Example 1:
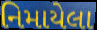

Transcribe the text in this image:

નિમાયેલા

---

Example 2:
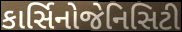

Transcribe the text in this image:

કાર્સિનોજેનિસિટી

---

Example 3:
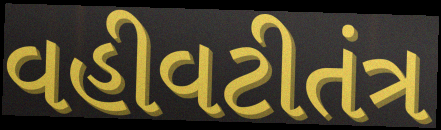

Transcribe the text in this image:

વહીવટીતંત્ર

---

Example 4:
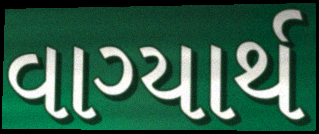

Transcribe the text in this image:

વાગ્યાર્થ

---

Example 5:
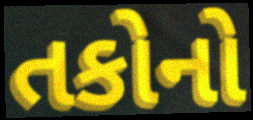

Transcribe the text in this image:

તકોનો